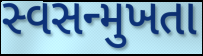
સ્વસન્મુખતા